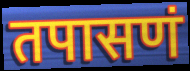
तपासणं